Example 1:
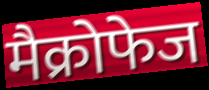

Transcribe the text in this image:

मैक्रोफेज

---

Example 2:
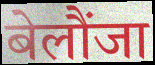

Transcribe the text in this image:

बेलौंजा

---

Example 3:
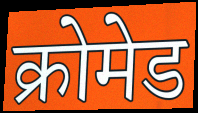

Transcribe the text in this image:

क्रोमेड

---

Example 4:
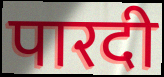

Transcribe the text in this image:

पारदी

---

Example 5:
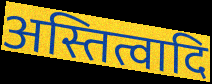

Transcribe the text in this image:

अस्तित्वादि